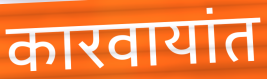
कारवायांत